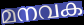
മനവക